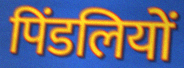
पिंडलियों